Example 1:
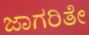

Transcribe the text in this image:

ಜಾಗರಿತೇ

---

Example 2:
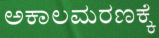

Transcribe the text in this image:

ಅಕಾಲಮರಣಕ್ಕೆ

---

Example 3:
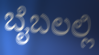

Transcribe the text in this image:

ಬೈಬಲಲ್ಲಿ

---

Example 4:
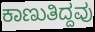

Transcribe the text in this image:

ಕಾಣುತಿದ್ದವು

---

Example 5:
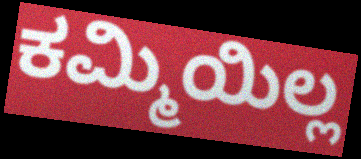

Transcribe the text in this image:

ಕಮ್ಮಿಯಿಲ್ಲ